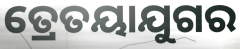
ତ୍ରେତୟାଯୁଗର